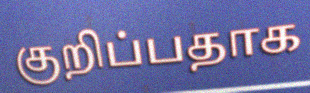
குறிப்பதாக